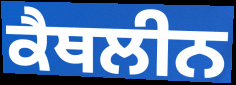
ਕੈਥਲੀਨ